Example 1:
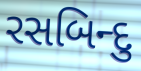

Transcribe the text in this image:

રસબિન્દુ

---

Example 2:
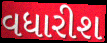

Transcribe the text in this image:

વધારીશ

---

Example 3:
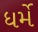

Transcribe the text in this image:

ધર્મે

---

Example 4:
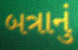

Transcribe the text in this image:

બત્રાનું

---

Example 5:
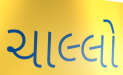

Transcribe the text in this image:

ચાલ્લો